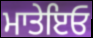
ਮਾਤੇਇਓ